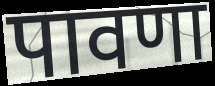
पावणा